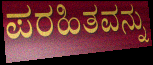
ಪರಹಿತವನ್ನು